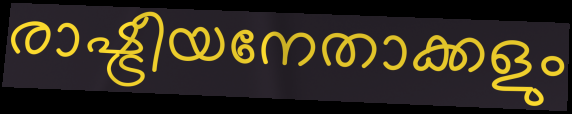
രാഷ്ട്രീയനേതാക്കളും